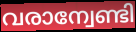
വരാന്വേണ്ടി